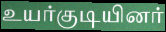
உயர்குடியினர்